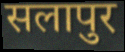
सलापुर